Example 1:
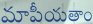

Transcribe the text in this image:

మాపీయతాం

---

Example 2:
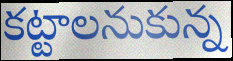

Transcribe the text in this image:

కట్టాలనుకున్న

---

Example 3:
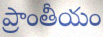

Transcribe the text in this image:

ప్రాంతీయం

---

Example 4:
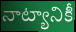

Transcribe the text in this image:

నాట్యానికీ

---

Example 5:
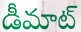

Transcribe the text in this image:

డీమాట్